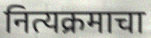
नित्यक्रमाचा